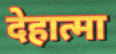
देहात्मा